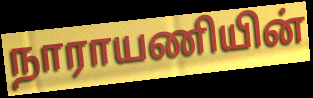
நாராயணியின்